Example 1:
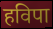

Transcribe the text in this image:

हविपा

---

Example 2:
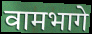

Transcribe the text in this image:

वामभागे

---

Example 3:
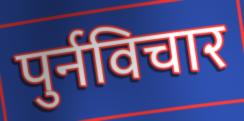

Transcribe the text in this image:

पुर्नविचार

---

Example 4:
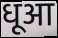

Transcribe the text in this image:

धूआ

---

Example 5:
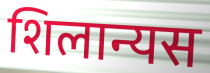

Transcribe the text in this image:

शिलान्यस